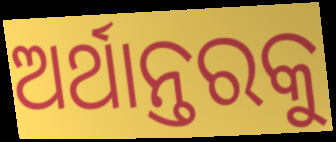
ଅର୍ଥାନ୍ତରକୁ